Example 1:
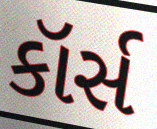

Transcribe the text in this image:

કૉર્સ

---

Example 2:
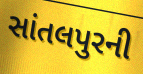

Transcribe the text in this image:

સાંતલપુરની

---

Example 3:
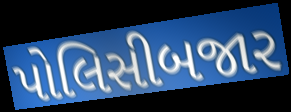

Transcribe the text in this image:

પોલિસીબજાર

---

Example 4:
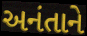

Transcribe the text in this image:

અનંતાને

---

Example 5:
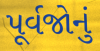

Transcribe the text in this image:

પૂર્વજોનું